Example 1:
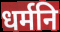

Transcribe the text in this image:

धर्मनि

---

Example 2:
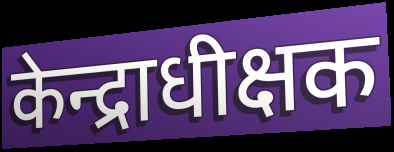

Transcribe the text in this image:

केन्द्राधीक्षक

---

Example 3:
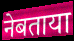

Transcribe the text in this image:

नेबताया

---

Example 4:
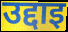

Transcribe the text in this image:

उद्दाइ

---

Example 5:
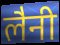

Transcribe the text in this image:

लैनी